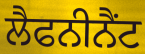
ਲੈਫਨੀਨੈਂਟ